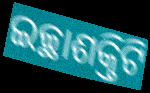
ଇଚ୍ଛାଶକ୍ତିଟି